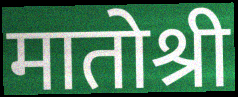
मातोश्री